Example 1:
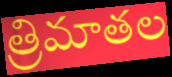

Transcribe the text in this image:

త్రిమాతల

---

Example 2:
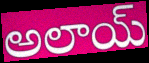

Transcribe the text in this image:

అలాయ్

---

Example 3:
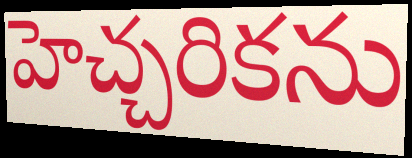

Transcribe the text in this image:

హెచ్చరికను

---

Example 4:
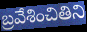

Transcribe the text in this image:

బ్రవేశించితిని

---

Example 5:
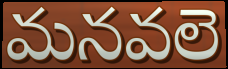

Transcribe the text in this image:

మనవలె